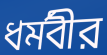
ধর্মবীর